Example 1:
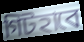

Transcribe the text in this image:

গিটহাবে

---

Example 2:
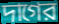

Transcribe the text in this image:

দাগের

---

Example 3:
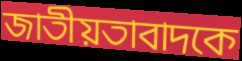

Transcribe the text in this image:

জাতীয়তাবাদকে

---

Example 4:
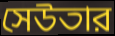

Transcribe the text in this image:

সেউতার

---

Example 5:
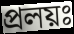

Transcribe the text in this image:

প্রলয়ঃ